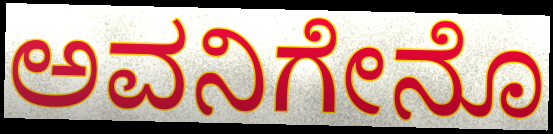
ಅವನಿಗೇನೊ